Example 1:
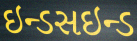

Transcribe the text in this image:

ઇન્ડસઇન્ડ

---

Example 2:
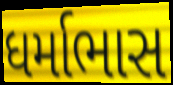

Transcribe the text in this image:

ધર્માભાસ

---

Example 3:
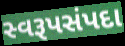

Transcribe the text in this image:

સ્વરૂપસંપદા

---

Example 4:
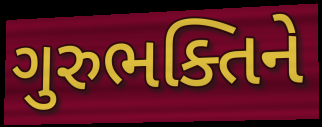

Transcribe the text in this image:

ગુરુભક્તિને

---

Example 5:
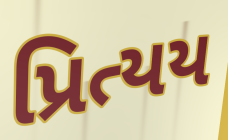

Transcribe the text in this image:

પ્રિત્યય